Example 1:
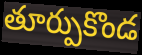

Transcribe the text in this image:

తూర్పుకొండ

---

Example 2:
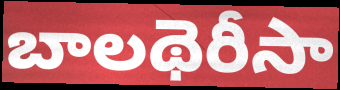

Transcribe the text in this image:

బాలథెరీసా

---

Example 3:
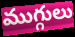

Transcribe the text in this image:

ముగ్గులు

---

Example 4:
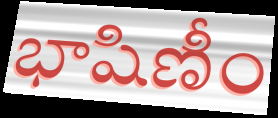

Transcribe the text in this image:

భాషిణీం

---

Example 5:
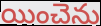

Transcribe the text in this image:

యించెను